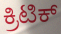
ಕ್ರಿಟಿಕ್